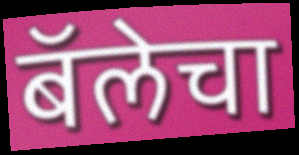
बॅलेचा